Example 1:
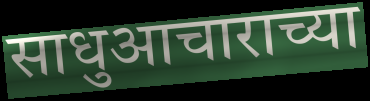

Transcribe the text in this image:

साधुआचाराच्या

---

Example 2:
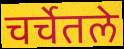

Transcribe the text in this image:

चर्चेतले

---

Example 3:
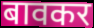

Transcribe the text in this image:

बावकर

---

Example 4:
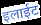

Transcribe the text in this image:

इलाईट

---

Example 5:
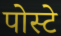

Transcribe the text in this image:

पोस्टे